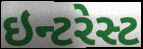
ઇન્ટરેસ્ટ